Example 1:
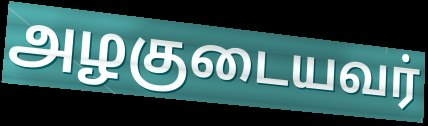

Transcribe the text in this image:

அழகுடையவர்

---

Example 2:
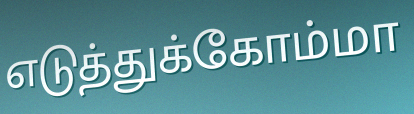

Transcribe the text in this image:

எடுத்துக்கோம்மா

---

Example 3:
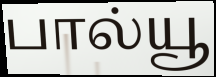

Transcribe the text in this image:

பால்யூ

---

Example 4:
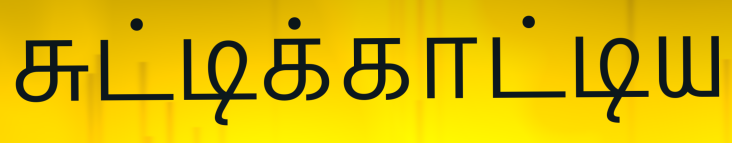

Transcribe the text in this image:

சுட்டிக்காட்டிய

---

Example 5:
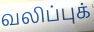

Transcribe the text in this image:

வலிப்புக்